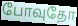
போவுதோ